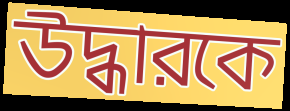
উদ্ধারকে